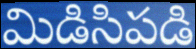
మిడిసిపడి